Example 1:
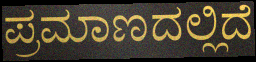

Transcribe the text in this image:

ಪ್ರಮಾಣದಲ್ಲಿದೆ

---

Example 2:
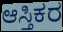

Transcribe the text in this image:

ಆಸ್ತಿಕರ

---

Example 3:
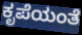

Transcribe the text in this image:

ಕೃಪೆಯಂತೆ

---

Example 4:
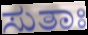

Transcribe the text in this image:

ಸುತಾಃ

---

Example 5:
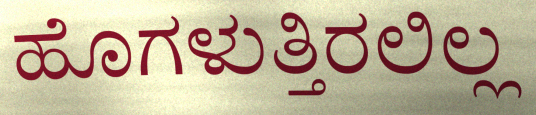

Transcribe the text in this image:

ಹೊಗಳುತ್ತಿರಲಿಲ್ಲ